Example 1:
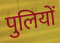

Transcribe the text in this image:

पुलियों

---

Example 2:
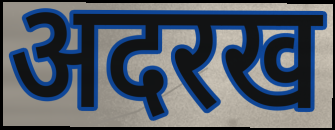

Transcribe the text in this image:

अदरख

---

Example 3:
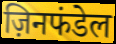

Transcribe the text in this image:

ज़िनफंडेल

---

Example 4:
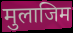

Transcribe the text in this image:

मुलाजिम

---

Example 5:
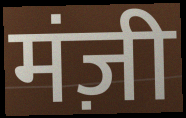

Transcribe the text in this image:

मंज़ी